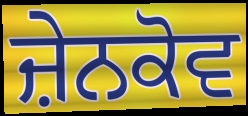
ਜ਼ੇਨਕੋਵ